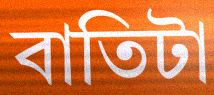
বাতিটা